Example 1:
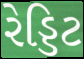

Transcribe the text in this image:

રેડ્ડિટ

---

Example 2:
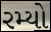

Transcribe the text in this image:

રમ્યો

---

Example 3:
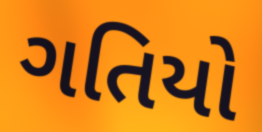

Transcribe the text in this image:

ગતિયો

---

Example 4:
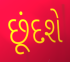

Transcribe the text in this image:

છૂંદશે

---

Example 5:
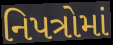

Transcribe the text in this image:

નિપત્રોમાં